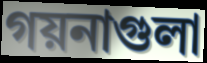
গয়নাগুলা